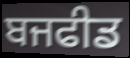
ਬਜਫੀਡ